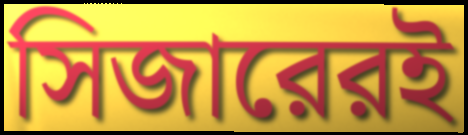
সিজারেরই